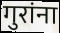
गुरांना